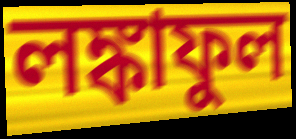
লঙ্কাফুল